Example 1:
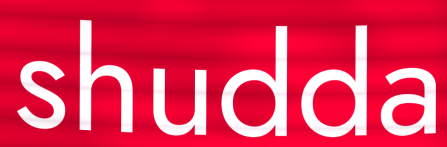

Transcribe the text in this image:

shudda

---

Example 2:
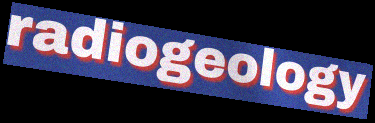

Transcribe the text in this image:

radiogeology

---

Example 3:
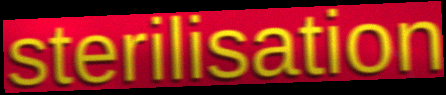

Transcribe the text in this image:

sterilisation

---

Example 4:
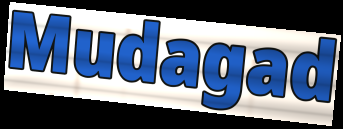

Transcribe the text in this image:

Mudagad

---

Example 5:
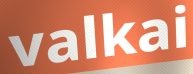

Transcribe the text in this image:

valkai